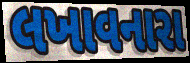
લખાવનારા